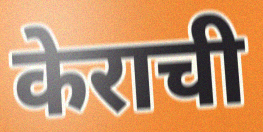
केराची